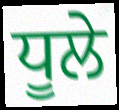
ਧੂਲੇ